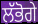
ਲੱਭੋਗੇ